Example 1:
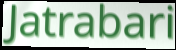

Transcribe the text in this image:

Jatrabari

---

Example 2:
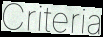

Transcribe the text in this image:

Criteria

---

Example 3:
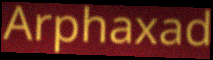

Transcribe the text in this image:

Arphaxad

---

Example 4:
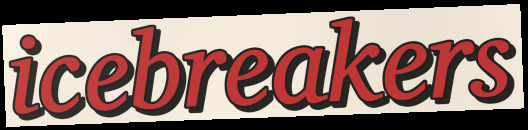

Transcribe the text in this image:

icebreakers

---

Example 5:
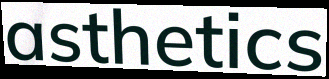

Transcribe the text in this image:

asthetics